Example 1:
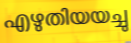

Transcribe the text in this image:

എഴുതിയയച്ചു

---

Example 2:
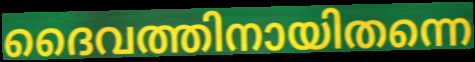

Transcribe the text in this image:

ദൈവത്തിനായിതന്നെ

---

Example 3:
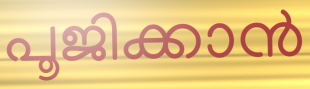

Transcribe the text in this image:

പൂജിക്കാൻ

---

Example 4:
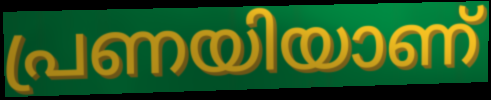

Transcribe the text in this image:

പ്രണയിയാണ്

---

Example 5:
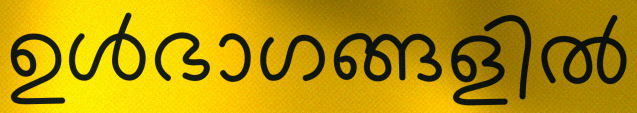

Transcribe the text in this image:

ഉൾഭാഗങ്ങളിൽ